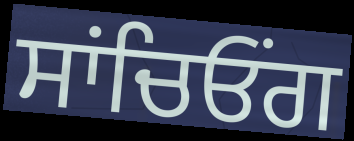
ਸਾਂਚਿਓਂਗ